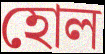
হোল